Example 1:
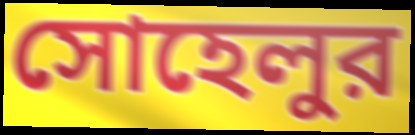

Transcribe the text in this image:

সোহেলুর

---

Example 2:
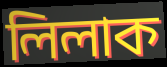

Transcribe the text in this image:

লিলাক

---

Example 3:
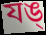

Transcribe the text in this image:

যঙ্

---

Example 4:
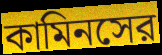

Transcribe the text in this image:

কামিনসের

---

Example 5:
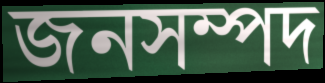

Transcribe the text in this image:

জনসম্পদ